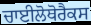
ਚਾਈਲੋਥੋਰੈਕਸ